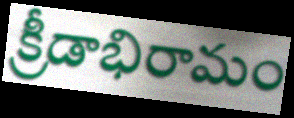
క్రీడాభిరామం